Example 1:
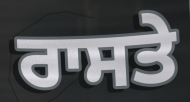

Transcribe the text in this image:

ਰਾਸਤੇ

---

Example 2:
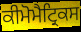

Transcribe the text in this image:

ਕੀਮੋਮੈਟ੍ਰਿਕਸ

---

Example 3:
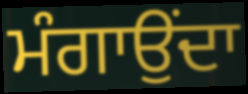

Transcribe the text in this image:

ਮੰਗਾਉਂਦਾ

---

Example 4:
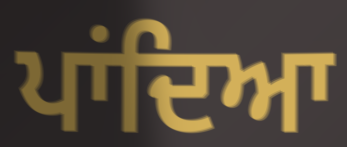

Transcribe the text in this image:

ਪਾਂਦਿਆ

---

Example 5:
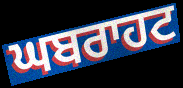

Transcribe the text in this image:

ਘਬਰਾਹਟ